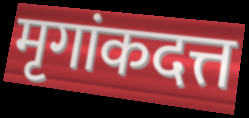
मृगांकदत्त